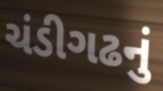
ચંડીગઢનું